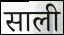
साली